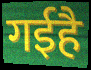
गईहै